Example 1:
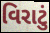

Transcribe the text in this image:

વિરાટું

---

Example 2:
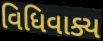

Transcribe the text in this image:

વિધિવાક્ય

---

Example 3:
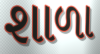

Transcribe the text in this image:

શાળા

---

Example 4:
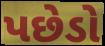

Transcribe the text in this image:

પછેડો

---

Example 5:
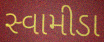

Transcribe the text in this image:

સ્વામીડા